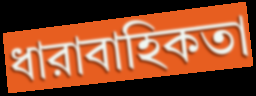
ধারাবাহিকতা